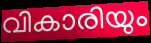
വികാരിയും